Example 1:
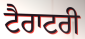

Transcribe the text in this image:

ਟੈਰਾਟਰੀ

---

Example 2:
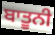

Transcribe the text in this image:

ਬਾਤੂਨੀ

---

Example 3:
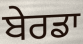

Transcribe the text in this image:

ਬੇਰਡਾ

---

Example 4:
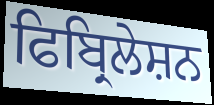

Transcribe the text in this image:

ਫਿਬ੍ਰਿਲੇਸ਼ਨ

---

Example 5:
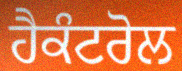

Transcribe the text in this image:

ਹੈਕੰਟਰੋਲ